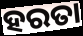
ହରତା